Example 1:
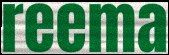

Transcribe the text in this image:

reema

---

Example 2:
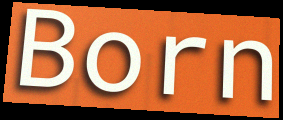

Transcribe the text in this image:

Born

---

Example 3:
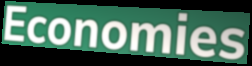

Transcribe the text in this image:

Economies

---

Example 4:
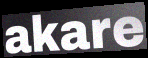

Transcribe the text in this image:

akare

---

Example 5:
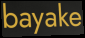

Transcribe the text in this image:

bayake